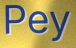
Pey